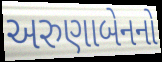
અરુણાબેનનો